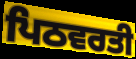
ਪਿਠਵਰਤੀ